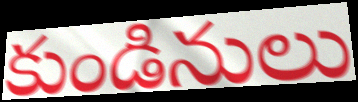
కుండినులు